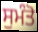
ਸੁਮੰਤੋ